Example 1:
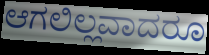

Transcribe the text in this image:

ಆಗಲಿಲ್ಲವಾದರೂ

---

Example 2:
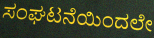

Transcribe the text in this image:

ಸಂಘಟನೆಯಿಂದಲೇ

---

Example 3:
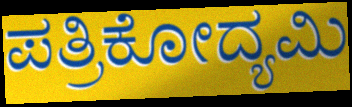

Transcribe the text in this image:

ಪತ್ರಿಕೋದ್ಯಮಿ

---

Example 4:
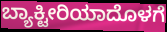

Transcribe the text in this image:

ಬ್ಯಾಕ್ಟೀರಿಯಾದೊಳಗೆ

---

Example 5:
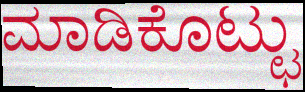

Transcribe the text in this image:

ಮಾಡಿಕೊಟ್ಟು